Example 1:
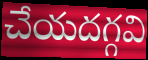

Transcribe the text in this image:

చేయదగ్గవి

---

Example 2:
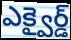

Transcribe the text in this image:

ఎక్వైర్డ్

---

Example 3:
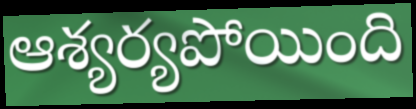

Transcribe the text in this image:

ఆశ్యర్యపోయింది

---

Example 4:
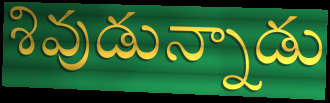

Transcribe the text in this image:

శివుడున్నాడు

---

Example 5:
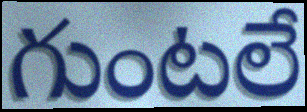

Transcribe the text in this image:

గుంటలే